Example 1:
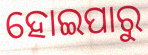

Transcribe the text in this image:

ହୋଇପାରୁ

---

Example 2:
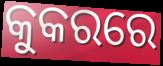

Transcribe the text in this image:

କୁକରରେ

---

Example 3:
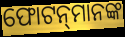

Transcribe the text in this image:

ଫୋଟନ୍‍ମାନଙ୍କ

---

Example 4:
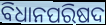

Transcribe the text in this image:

ବିଧାନପରିଷଦ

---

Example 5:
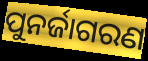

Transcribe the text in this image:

ପୁନର୍ଜାଗରଣ